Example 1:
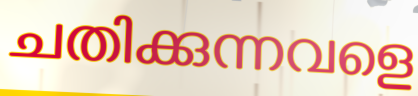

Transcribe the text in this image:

ചതിക്കുന്നവളെ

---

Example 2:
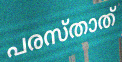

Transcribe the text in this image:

പരസ്താത്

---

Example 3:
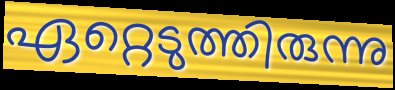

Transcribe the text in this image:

ഏറ്റെടുത്തിരുന്നു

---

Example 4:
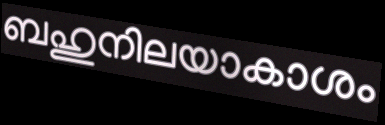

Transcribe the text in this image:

ബഹുനിലയാകാശം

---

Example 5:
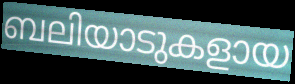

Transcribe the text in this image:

ബലിയാടുകളായ